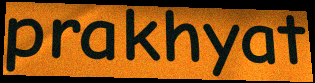
prakhyat